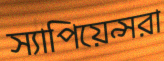
স্যাপিয়েন্সরা